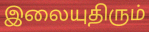
இலையுதிரும்